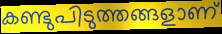
കണ്ടുപിടുത്തങ്ങളാണ്